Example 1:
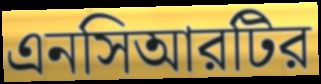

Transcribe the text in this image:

এনসিআরটির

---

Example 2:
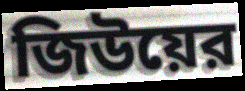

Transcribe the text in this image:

জিউয়ের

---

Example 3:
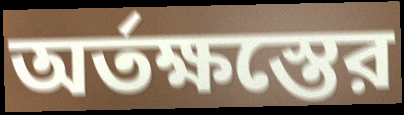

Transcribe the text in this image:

অর্তক্ষস্তের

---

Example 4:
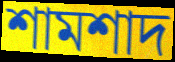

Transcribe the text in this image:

শামশাদ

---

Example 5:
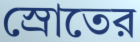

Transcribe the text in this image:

স্রোতের